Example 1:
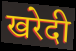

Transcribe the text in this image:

खरेदी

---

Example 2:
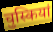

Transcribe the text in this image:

चुस्कियां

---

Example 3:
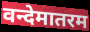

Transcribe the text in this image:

वन्देमातरम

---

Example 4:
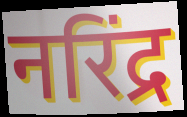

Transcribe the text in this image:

नरिंद्र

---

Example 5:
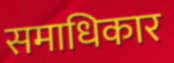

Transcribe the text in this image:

समाधिकार